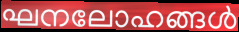
ഘനലോഹങ്ങൾ